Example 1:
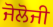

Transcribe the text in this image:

ਜੋਲੋਜੀ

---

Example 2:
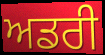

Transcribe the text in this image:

ਅਡਰੀ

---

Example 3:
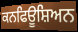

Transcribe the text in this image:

ਕਨਫਿਊਸ਼ਿਅਨ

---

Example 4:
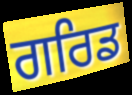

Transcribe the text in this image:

ਗਰਿਡ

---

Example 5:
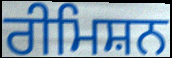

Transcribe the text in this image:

ਰੀਮਿਸ਼ਨ